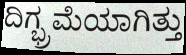
ದಿಗ್ಭ್ರಮೆಯಾಗಿತ್ತು